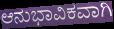
ಆನುಭಾವಿಕವಾಗಿ